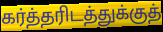
கர்த்தரிடத்துக்குத்